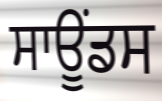
ਸਾਊਂਡਸ